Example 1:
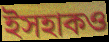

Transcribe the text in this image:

ইসহাকও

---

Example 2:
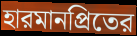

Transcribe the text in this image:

হারমানপ্রিতের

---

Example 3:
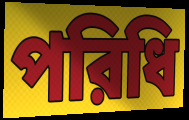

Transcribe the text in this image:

পরিধি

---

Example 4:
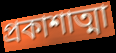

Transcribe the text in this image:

প্রকাশাত্মা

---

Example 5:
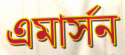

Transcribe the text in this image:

এমার্সন